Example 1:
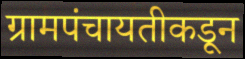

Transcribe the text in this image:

ग्रामपंचायतीकडून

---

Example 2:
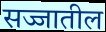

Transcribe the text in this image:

सज्जातील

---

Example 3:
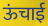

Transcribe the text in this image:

ऊंचाई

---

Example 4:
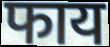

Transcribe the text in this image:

फाय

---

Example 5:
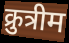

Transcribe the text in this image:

क्रुत्रीम